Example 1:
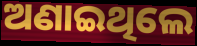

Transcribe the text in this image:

ଅଣାଇଥିଲେ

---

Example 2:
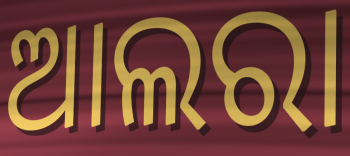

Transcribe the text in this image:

ଆଲରା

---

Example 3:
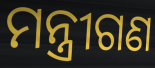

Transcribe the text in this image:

ମନ୍ତ୍ରୀଗଣ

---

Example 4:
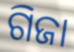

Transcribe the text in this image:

ଗିଜା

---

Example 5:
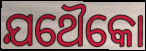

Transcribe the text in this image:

ଯଥୈକୋ